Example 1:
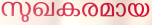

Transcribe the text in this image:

സുഖകരമായ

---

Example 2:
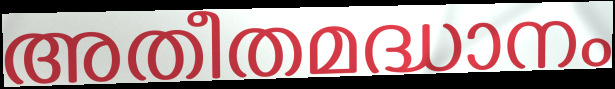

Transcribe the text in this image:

അതീതമദ്ധാനം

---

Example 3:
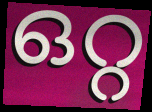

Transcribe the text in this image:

ഒറ്റ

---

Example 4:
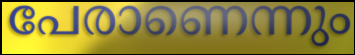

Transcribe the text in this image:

പേരാണെന്നും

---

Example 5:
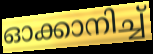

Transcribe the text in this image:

ഓക്കാനിച്ച്